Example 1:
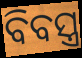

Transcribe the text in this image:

ବିବସ୍ତ୍ର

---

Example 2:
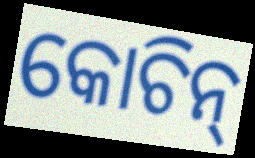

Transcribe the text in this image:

କୋଚିନ୍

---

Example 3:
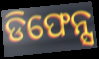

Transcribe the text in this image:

ଡିଫେନ୍ସ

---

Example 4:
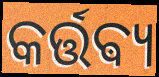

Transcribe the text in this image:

କର୍ତ୍ତଵ୍ୟ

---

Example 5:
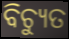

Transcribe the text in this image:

ବିଚ୍ୟୁତ